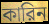
কারিন